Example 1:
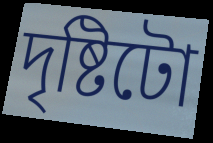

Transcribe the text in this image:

দৃষ্টিটো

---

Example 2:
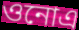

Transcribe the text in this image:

ওনোএ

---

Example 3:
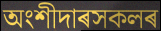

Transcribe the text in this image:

অংশীদাৰসকলৰ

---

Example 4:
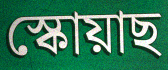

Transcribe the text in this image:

স্কোয়াছ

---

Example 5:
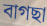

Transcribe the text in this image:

বাগছা